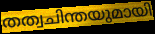
തത്വചിന്തയുമായി